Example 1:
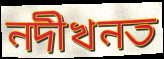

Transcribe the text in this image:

নদীখনত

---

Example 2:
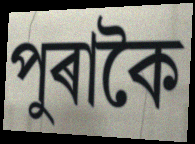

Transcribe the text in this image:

পুৰাকৈ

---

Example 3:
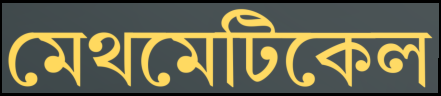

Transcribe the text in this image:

মেথমেটিকেল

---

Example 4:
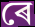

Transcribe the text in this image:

ৰে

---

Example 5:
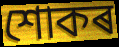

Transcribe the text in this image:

শোকৰ